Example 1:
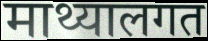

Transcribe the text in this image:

माथ्यालगत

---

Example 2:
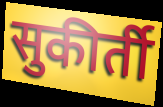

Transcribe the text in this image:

सुकीर्ती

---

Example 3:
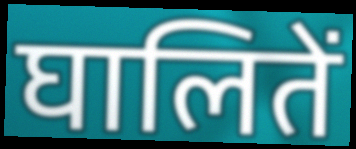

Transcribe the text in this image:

घालितें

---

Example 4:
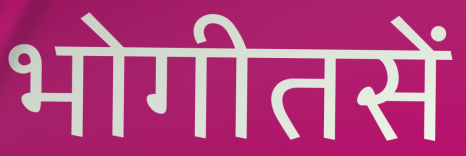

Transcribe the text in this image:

भोगीतसें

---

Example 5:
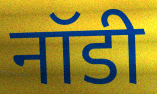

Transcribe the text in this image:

नॉडी